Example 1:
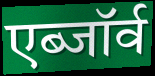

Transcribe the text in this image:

एब्जॉर्व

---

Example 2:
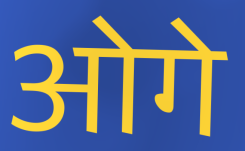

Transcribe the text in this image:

ओगे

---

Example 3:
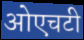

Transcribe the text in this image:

ओएचटी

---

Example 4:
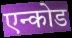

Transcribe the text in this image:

एन्कोड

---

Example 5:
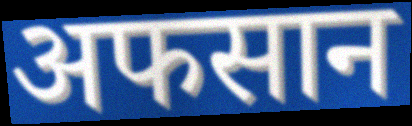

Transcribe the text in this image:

अफसान